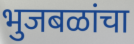
भुजबळांचा